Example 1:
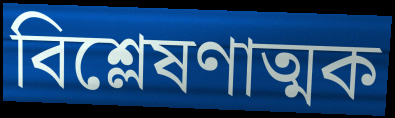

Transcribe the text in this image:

বিশ্লেষণাত্মক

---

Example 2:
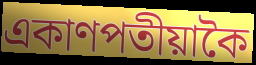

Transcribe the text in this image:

একাণপতীয়াকৈ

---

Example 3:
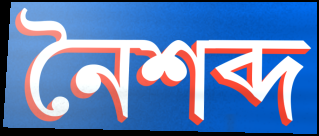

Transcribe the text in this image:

নৈশব্দ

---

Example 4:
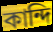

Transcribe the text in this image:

কান্দি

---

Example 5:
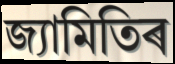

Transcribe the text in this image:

জ্যামিতিৰ